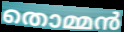
തൊമ്മൻ